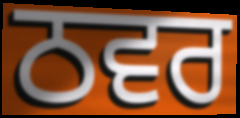
ਠਵਰ